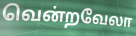
வென்றவேலா